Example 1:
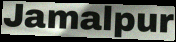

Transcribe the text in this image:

Jamalpur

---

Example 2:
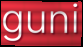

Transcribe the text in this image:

guni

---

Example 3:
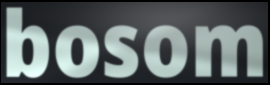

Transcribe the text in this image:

bosom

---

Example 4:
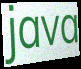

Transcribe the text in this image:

java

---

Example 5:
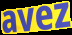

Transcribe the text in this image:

avez